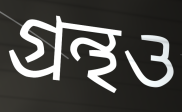
গ্রন্থও